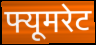
फ्यूमरेट